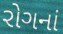
રોગનાં